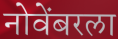
नोवेंबरला